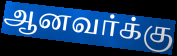
ஆனவர்க்கு